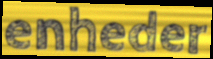
enheder